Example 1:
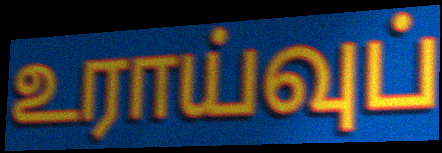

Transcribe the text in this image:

உராய்வுப்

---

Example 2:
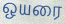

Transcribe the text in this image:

ஒயரை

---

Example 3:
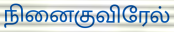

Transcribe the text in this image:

நினைகுவிரேல்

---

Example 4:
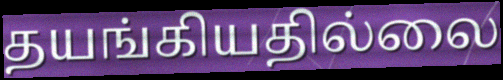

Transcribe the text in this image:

தயங்கியதில்லை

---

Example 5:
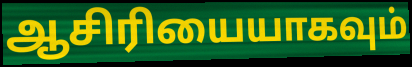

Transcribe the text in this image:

ஆசிரியையாகவும்